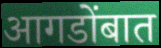
आगडोंबात